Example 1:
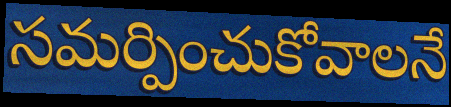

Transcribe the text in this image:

సమర్పించుకోవాలనే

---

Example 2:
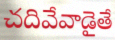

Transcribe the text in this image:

చదివేవాడైతే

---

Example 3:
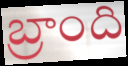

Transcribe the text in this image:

బ్రాంది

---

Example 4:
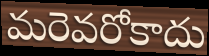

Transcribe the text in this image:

మరెవరోకాదు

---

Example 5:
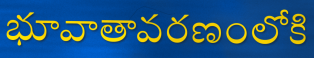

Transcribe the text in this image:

భూవాతావరణంలోకి